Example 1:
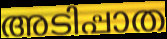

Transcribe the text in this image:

അടിപ്പാത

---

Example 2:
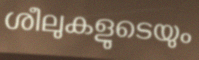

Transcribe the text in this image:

ശീലുകളുടെയും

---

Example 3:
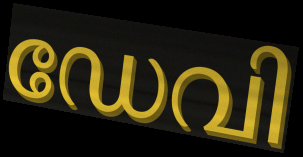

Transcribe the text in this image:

ഡേവി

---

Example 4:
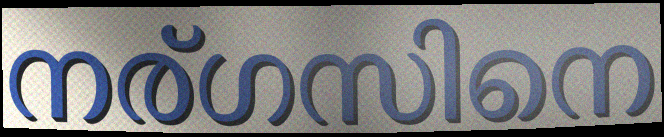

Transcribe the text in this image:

നര്ഗസിനെ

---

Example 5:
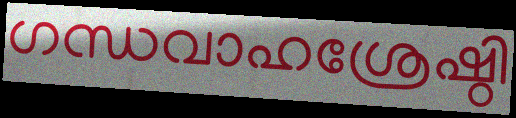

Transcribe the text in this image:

ഗന്ധവാഹശ്രേഷ്ഠി